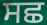
ਸਛ